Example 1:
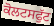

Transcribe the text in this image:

ਕੋਲਟਸਫੁੱਟ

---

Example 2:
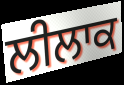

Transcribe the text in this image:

ਲੀਲਾਕ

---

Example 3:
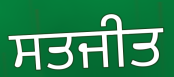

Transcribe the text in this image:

ਸਤਜੀਤ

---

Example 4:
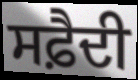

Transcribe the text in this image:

ਸਫ਼ੈਦੀ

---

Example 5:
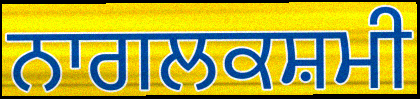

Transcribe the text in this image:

ਨਾਗਲਕਸ਼ਮੀ